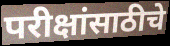
परीक्षांसाठीचे